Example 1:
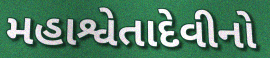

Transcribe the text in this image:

મહાશ્વેતાદેવીનો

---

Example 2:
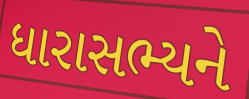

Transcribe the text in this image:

ધારાસભ્યને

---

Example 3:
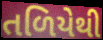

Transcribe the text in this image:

તળિયેથી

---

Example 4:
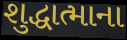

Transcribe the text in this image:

શુદ્ધાત્માના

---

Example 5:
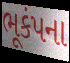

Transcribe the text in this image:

ભૂકંપના